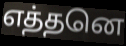
எத்தனெ